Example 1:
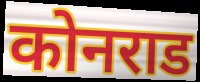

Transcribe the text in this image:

कोनराड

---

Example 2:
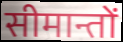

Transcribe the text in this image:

सीमान्तों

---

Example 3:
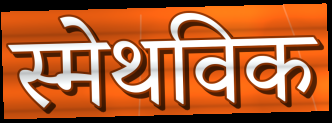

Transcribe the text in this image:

स्मेथविक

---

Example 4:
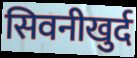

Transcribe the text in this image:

सिवनीखुर्द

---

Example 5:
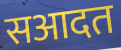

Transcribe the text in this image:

सआदत